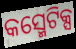
କସ୍ମେଟିକ୍ସ